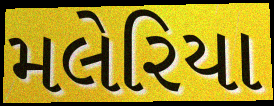
મલેરિયા